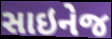
સાઇનેજ